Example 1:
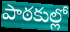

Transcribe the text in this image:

పాఠకుల్లో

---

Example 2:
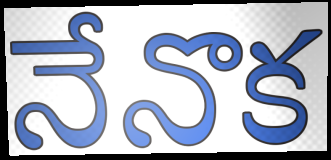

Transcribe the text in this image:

నేనొక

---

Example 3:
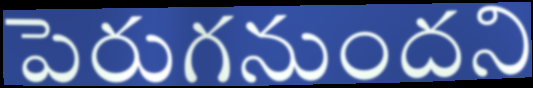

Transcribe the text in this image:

పెరుగనుందని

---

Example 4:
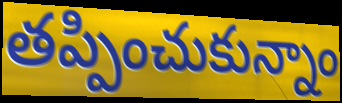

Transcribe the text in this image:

తప్పించుకున్నాం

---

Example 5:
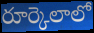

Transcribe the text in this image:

రూర్కెలాలో